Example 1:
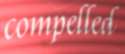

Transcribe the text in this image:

compelled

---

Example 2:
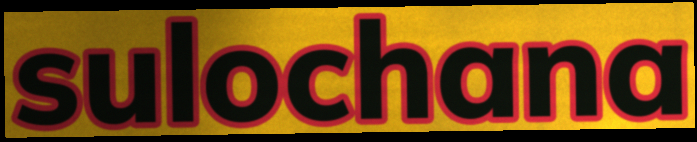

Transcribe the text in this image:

sulochana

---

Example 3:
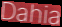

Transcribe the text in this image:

Dahia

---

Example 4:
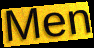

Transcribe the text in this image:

Men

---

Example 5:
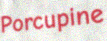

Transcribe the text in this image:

Porcupine